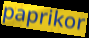
paprikor